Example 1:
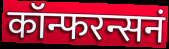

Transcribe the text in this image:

कॉन्फरन्सनं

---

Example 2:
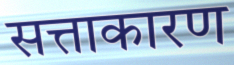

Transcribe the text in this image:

सत्ताकारण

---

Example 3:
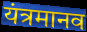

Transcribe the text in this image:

यंत्रमानव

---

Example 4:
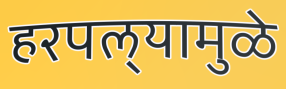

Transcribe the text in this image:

हरपल्यामुळे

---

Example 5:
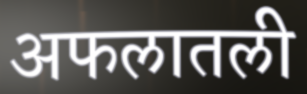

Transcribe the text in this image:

अफलातली